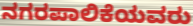
ನಗರಪಾಲಿಕೆಯವರು